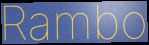
Rambo